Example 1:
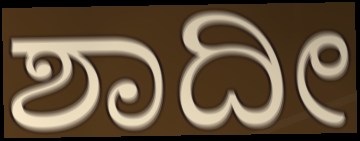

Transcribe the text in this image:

ಶಾದೀ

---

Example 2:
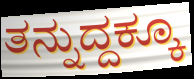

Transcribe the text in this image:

ತನ್ನುದ್ದಕ್ಕೂ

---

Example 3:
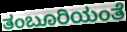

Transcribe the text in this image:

ತಂಬೂರಿಯಂತೆ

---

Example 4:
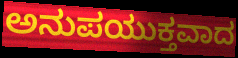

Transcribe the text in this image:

ಅನುಪಯುಕ್ತವಾದ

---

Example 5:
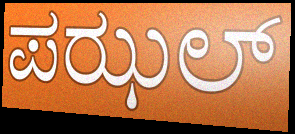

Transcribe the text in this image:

ಪಝಲ್